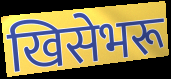
खिसेभरू